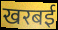
खरबई